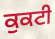
ਕੁਕਟੀ